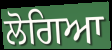
ਲੋਗਿਆ